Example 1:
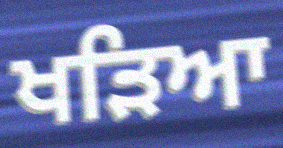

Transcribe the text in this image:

ਖੜਿਆ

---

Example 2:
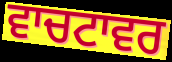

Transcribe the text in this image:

ਵਾਚਟਾਵਰ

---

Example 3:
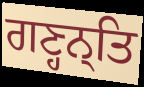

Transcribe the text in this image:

ਗਣ੍ਹਨ੍ਤਿ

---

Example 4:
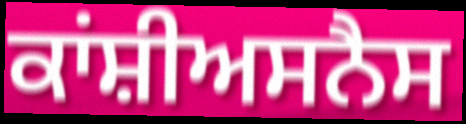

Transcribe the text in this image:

ਕਾਂਸ਼ੀਅਸਨੈਸ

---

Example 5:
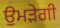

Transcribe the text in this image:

ਉਮੜੇਗੀ